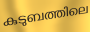
കുടുബത്തിലെ